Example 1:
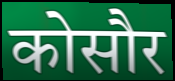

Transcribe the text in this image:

कोसौर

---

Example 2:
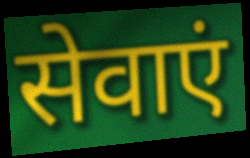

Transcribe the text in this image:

सेवाएं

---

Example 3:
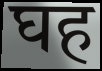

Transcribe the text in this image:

घह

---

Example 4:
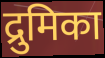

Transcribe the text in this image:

द्रुमिका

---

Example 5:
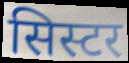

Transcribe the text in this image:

सिस्टर